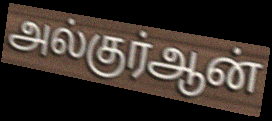
அல்குர்ஆன்